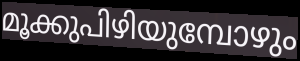
മൂക്കുപിഴിയുമ്പോഴും